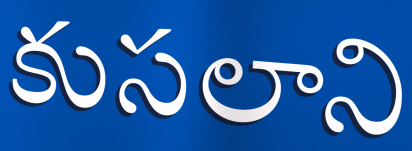
కుసలాని